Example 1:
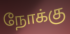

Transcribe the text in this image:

நோக்கு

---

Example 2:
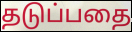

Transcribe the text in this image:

தடுப்பதை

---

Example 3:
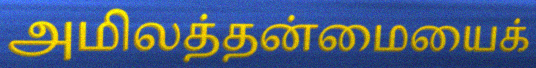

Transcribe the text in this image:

அமிலத்தன்மையைக்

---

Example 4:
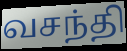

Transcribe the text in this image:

வசந்தி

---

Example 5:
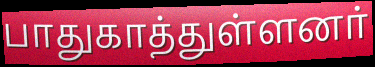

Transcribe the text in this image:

பாதுகாத்துள்ளனர்